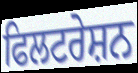
ਫਿਲਟਰੇਸ਼ਨ